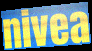
nivea